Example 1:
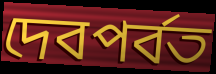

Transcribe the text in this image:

দেবপর্বত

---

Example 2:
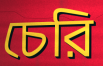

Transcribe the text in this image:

চেরি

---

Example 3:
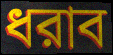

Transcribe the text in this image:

ধরাব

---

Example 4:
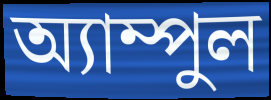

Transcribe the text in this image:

অ্যাম্পুল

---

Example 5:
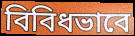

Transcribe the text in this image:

বিবিধভাবে